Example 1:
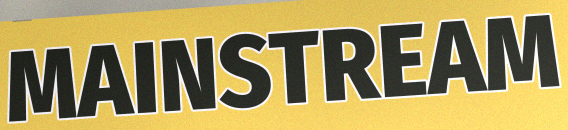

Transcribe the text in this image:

MAINSTREAM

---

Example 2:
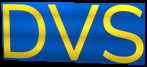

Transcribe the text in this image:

DVS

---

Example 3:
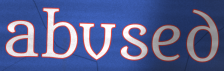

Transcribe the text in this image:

abused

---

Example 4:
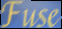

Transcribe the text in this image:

Fuse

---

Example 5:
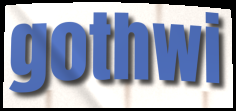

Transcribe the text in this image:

gothwi